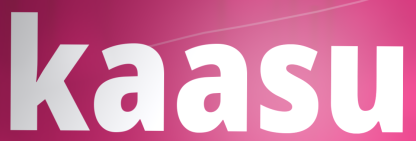
kaasu